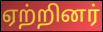
ஏற்றினர்